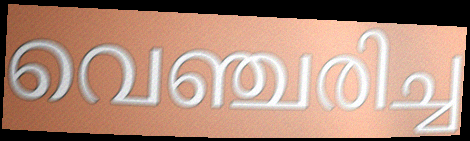
വെഞ്ചരിച്ച